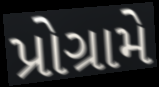
પ્રોગ્રામે